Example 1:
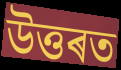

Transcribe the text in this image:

উত্তৰত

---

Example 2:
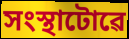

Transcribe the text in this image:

সংস্থাটোৱে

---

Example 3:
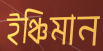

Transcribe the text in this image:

ইঞ্চিমান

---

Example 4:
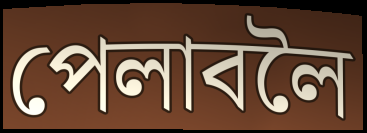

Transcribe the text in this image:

পেলাবলৈ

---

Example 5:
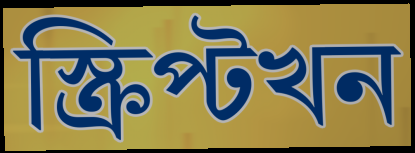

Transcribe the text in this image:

স্ক্ৰিপ্টখন